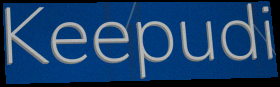
Keepudi